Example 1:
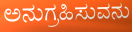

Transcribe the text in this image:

ಅನುಗ್ರಹಿಸುವನು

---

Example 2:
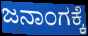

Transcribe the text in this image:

ಜನಾಂಗಕ್ಕೆ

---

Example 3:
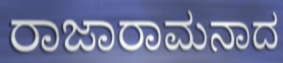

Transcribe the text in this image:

ರಾಜಾರಾಮನಾದ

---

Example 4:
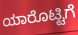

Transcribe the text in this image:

ಯಾರೊಟ್ಟಿಗೆ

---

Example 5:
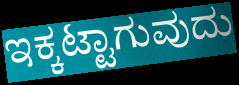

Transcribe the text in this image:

ಇಕ್ಕಟ್ಟಾಗುವುದು